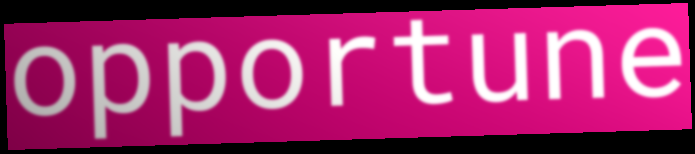
opportune